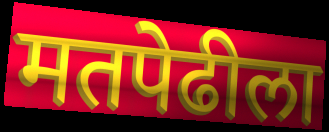
मतपेढीला